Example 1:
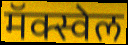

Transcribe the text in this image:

मॅक्स्वेल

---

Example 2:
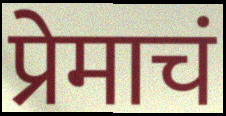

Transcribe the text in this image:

प्रेमाचं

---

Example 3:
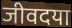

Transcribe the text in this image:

जीवदया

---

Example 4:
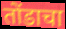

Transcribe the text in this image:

तोंडाचा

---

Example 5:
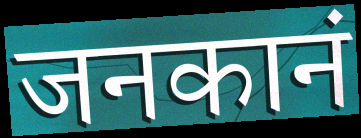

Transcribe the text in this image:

जनकानं